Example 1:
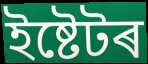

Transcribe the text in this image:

ইষ্টেটৰ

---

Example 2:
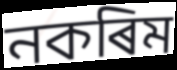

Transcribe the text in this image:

নকৰিম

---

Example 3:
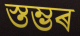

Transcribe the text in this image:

স্তম্ভৰ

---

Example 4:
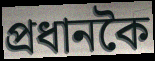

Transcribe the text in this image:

প্ৰধানকৈ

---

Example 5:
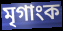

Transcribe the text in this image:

মৃগাংক